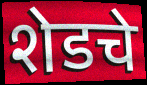
शेडचे